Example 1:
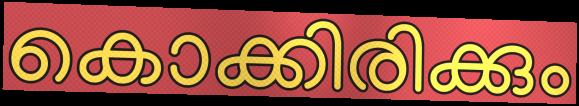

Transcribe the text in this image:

കൊക്കിരിക്കും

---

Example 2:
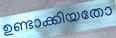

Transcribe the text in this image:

ഉണ്ടാക്കിയതോ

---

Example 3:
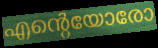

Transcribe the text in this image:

എന്റെയോരോ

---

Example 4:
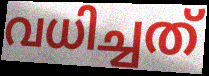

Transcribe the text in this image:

വധിച്ചത്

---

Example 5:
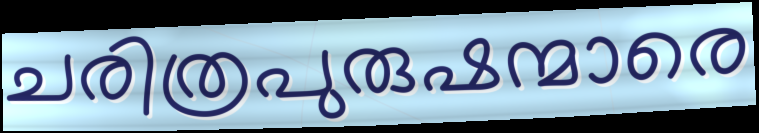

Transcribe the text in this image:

ചരിത്രപുരുഷന്മാരെ